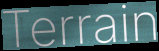
Terrain